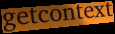
getcontext